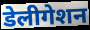
डेलीगेशन